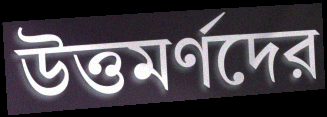
উত্তমর্ণদের